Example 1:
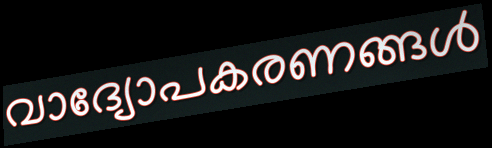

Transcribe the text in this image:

വാദ്യോപകരണങ്ങൾ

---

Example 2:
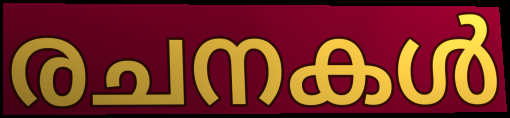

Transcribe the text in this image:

രചനകൾ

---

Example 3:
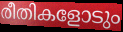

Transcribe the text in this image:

രീതികളോടും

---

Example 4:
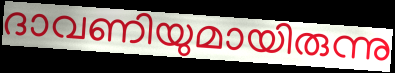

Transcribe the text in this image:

ദാവണിയുമായിരുന്നു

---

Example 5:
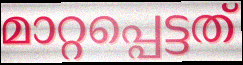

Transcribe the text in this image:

മാറ്റപ്പെട്ടത്